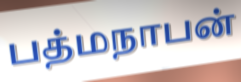
பத்மநாபன்